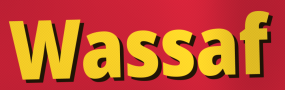
Wassaf